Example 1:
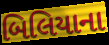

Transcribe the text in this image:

બિલિયાના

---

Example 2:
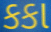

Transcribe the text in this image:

કકા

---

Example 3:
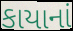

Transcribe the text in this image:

કાયાનાં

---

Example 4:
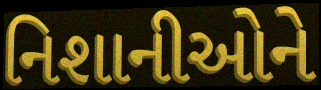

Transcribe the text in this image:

નિશાનીઓને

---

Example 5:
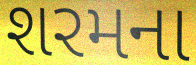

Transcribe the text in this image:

શરમના